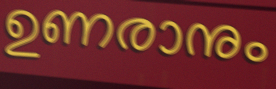
ഉണരാനും